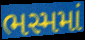
ભસ્મમાં